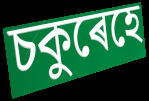
চকুৰেহে